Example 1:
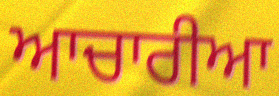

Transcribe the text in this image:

ਆਚਾਰੀਆ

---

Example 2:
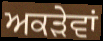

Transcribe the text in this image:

ਅਕੜੇਵਾਂ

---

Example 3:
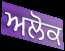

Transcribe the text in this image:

ਅਲੋਕ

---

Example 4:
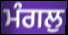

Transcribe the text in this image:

ਮੰਗਲੁ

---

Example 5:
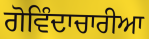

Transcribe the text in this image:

ਗੋਵਿੰਦਾਚਾਰੀਆ